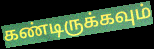
கண்டிருக்கவும்